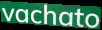
vachato